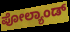
ಪೋಲ್ಯಾಂಡ್